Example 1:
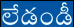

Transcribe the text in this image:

లేడండీ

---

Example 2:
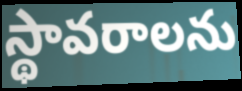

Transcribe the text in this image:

స్థావరాలను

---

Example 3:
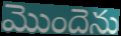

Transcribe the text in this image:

మొందెను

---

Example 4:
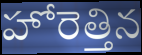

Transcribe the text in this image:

హోరెత్తిన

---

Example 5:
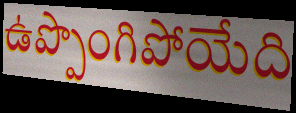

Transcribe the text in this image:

ఉప్పొంగిపోయేది